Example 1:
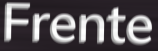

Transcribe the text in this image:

Frente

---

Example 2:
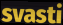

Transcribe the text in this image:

svasti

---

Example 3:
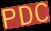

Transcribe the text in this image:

PDC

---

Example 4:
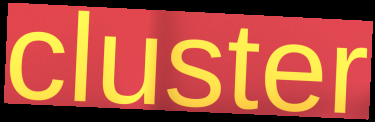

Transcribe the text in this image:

cluster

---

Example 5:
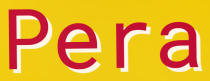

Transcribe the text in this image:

Pera